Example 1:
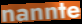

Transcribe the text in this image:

nannte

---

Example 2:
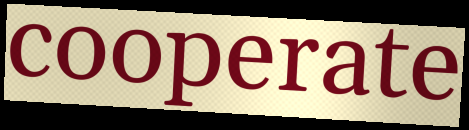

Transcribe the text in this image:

cooperate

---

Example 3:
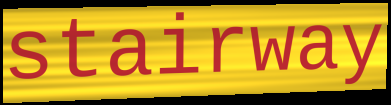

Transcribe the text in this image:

stairway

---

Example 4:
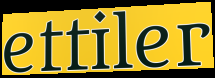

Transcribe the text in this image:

ettiler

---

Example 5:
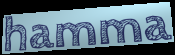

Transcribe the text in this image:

hamma